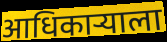
आधिकाऱ्याला